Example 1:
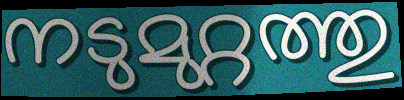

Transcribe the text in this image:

നടുമുറ്റത്തു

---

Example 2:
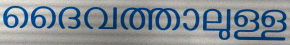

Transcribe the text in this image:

ദൈവത്താലുള്ള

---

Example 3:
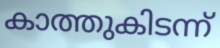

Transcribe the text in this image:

കാത്തുകിടന്ന്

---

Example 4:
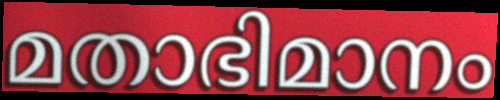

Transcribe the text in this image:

മതാഭിമാനം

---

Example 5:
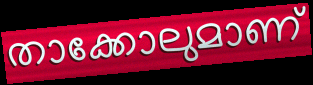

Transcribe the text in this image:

താക്കോലുമാണ്